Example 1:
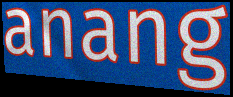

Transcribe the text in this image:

anang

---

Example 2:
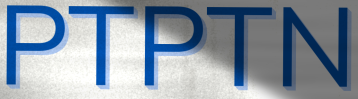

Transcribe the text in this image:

PTPTN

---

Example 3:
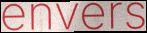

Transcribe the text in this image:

envers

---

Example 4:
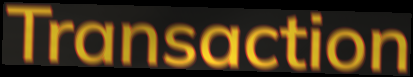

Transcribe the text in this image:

Transaction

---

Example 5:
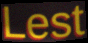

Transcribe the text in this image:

Lest